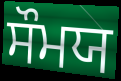
ਸੌਮਯ